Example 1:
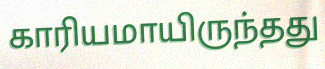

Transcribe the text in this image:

காரியமாயிருந்தது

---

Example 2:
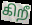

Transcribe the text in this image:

கிறீ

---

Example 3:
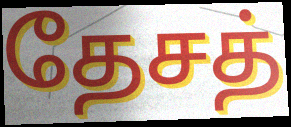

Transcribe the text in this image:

தேசத்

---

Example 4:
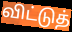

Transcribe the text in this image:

விட்டுத்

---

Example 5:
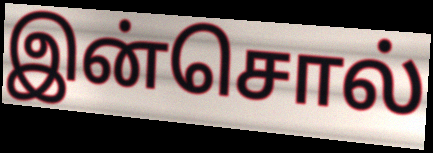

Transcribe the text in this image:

இன்சொல்